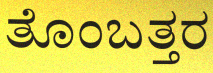
ತೊಂಬತ್ತರ